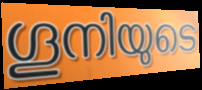
ഗൂനിയുടെ